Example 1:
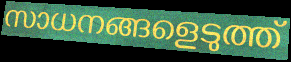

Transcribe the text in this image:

സാധനങ്ങളെടുത്ത്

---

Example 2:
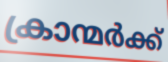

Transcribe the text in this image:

ക്രാന്മർക്ക്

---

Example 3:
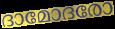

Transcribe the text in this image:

ദാമോദരോ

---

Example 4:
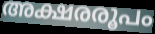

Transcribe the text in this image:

അക്ഷരരൂപം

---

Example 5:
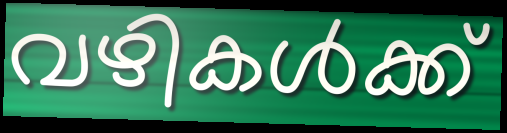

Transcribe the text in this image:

വഴികൾക്ക്